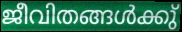
ജീവിതങ്ങൾക്കു്